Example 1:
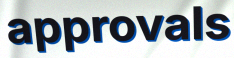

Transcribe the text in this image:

approvals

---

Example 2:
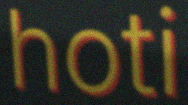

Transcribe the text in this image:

hoti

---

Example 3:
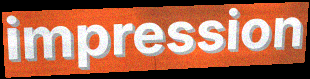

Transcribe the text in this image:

impression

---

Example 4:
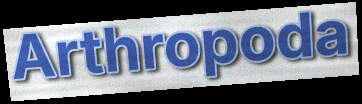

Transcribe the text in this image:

Arthropoda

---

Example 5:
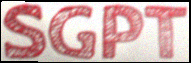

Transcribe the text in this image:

SGPT